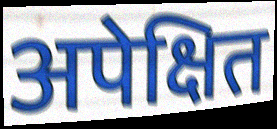
अपेक्षित